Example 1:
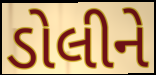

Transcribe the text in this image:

ડોલીને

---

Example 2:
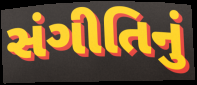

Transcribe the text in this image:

સંગીતિનું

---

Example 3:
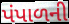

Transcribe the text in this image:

પંપાળની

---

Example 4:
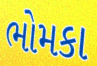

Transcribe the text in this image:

ભોમકા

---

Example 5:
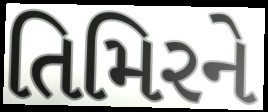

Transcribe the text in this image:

તિમિરને